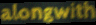
alongwith